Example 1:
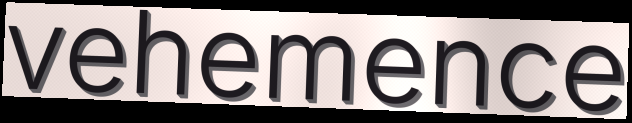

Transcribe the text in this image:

vehemence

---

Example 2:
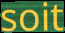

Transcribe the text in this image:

soit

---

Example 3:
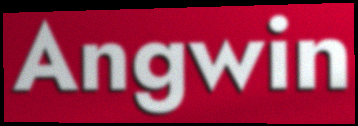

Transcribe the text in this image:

Angwin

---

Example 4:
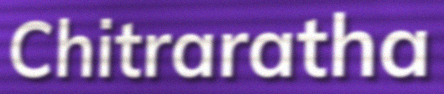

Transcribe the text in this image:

Chitraratha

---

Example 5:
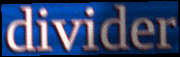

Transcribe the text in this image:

divider